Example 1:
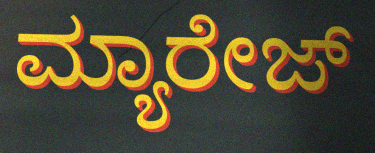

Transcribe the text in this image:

ಮ್ಯಾರೇಜ್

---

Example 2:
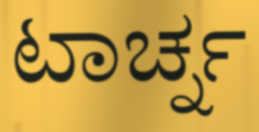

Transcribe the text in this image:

ಟಾರ್ಚ್ನ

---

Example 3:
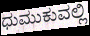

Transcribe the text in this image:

ಧುಮುಕುವಲ್ಲಿ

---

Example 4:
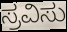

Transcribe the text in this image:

ಸ್ರವಿಸು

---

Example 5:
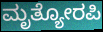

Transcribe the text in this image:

ಮೃತ್ಯೋರಪಿ